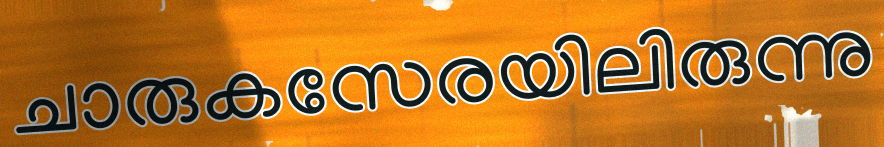
ചാരുകസേരയിലിരുന്നു